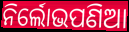
ନିର୍ଲୋଭପଣିଆ